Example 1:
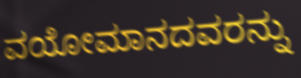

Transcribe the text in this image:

ವಯೋಮಾನದವರನ್ನು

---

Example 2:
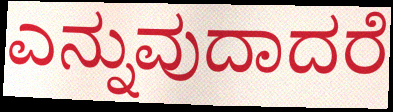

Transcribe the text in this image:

ಎನ್ನುವುದಾದರೆ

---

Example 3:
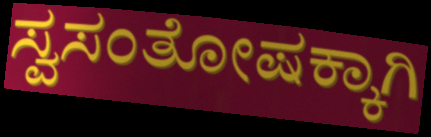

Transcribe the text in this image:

ಸ್ವಸಂತೋಷಕ್ಕಾಗಿ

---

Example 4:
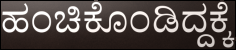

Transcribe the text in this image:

ಹಂಚಿಕೊಂಡಿದ್ದಕ್ಕೆ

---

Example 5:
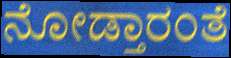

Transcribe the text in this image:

ನೋಡ್ತಾರಂತೆ